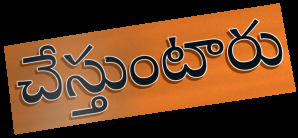
చేస్తుంటారు